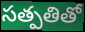
సత్పతితో